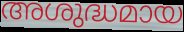
അശുദ്ധമായ